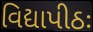
વિદ્યાપીઠઃ